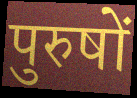
पुरुषों